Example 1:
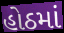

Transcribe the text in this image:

હોઠમાં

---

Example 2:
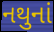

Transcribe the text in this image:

નથુનાં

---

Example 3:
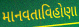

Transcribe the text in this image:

માનવતાવિહોણા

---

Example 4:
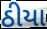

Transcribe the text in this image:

ઠીયા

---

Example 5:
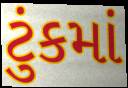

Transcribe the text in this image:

ટુંકમાં